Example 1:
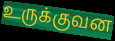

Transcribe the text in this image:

உருக்குவன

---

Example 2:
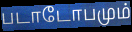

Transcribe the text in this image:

படாடோபமும்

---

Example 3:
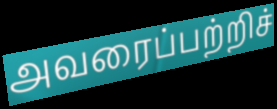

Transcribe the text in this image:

அவரைப்பற்றிச்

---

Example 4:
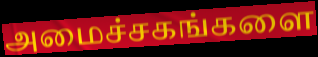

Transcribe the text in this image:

அமைச்சகங்களை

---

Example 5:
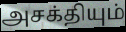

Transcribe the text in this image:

அசக்தியும்